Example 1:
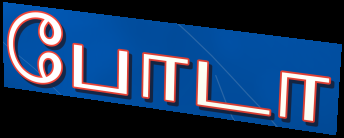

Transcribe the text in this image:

போடா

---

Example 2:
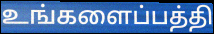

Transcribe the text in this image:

உங்களைப்பத்தி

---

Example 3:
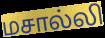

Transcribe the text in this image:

மசால்லி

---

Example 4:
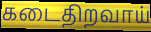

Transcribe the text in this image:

கடைதிறவாய்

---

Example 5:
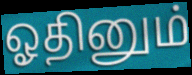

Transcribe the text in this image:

ஓதினும்